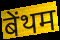
बेंथम